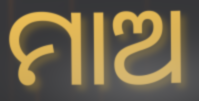
ମାଅ